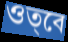
ওত্‌বে